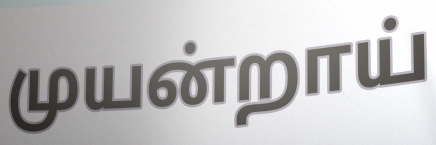
முயன்றாய்